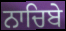
ਨਾਚਿਬੇ